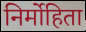
निर्मोहिता